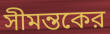
সীমন্তকের